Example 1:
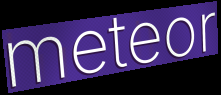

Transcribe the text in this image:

meteor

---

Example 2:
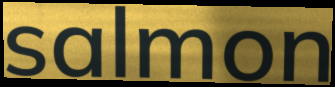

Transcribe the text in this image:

salmon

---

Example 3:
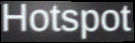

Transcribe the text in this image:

Hotspot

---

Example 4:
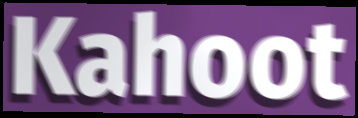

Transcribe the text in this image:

Kahoot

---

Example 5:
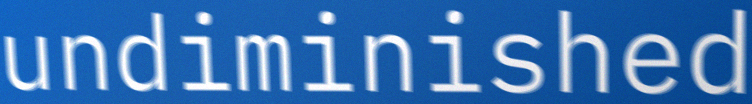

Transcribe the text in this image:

undiminished